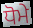
ਧੋਮੇ